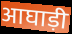
आघाड़ी